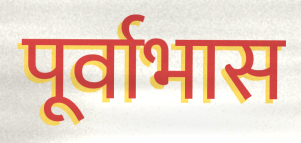
पूर्वाभास